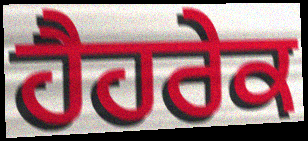
ਹੈਹਰੇਕ